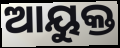
ଆୟୁକ୍ତ